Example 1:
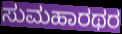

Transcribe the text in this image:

ಸುಮಹಾರಥರ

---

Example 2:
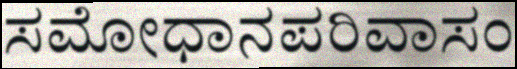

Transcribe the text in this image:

ಸಮೋಧಾನಪರಿವಾಸಂ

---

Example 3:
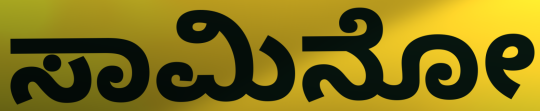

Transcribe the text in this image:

ಸಾಮಿನೋ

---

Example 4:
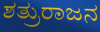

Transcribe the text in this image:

ಶತ್ರುರಾಜನ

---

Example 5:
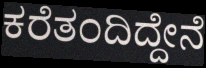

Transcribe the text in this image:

ಕರೆತಂದಿದ್ದೇನೆ